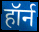
हॉर्न